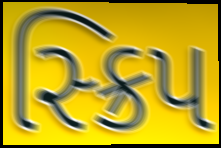
સ્ક્રિપ